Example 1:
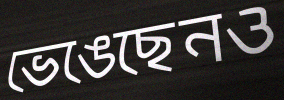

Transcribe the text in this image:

ভেঙেছেনও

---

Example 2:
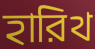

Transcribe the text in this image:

হারিথ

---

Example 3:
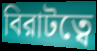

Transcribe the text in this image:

বিরাটত্বে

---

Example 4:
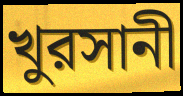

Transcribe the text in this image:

খুরসানী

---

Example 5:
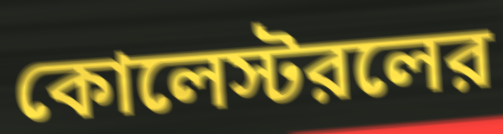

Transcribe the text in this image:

কোলেস্টরলের